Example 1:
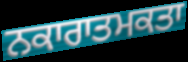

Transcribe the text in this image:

ਨਕਾਰਾਤਮਕਤਾ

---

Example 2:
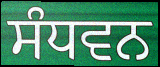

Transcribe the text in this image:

ਸੰਧਵਨ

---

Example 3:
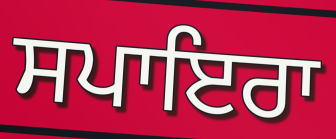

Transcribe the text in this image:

ਸਪਾਇਰਾ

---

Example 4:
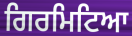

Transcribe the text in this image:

ਗਿਰਮਿਟਿਆ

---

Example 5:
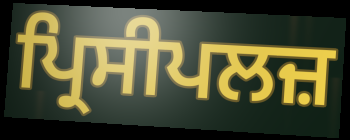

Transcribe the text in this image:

ਪ੍ਰਿਸੀਪਲਜ਼